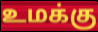
உமக்கு